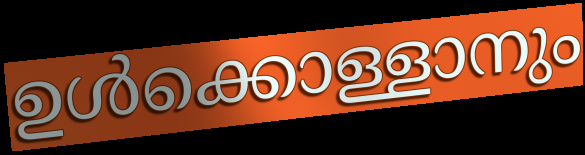
ഉൾക്കൊള്ളാനും